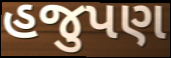
હજુપણ